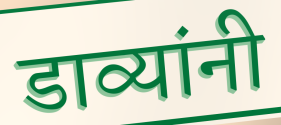
डाव्यांनी